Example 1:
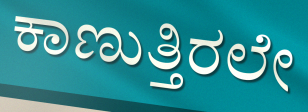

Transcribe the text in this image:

ಕಾಣುತ್ತಿರಲೇ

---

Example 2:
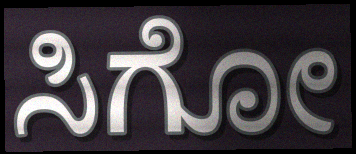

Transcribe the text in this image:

ಸಿಗೋ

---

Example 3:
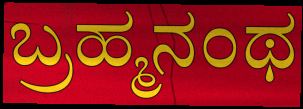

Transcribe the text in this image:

ಬ್ರಹ್ಮನಂಥ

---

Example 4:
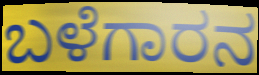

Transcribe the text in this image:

ಬಳೆಗಾರನ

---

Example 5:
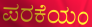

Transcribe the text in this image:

ಪರಕೆಯಂ